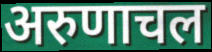
अरुणाचल